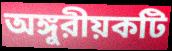
অঙ্গুরীয়কটি